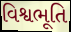
વિશ્વભૂતિ